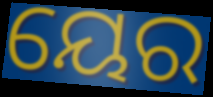
ୟେର